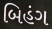
બિહંગ